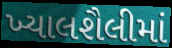
ખ્યાલશૈલીમાં